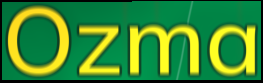
Ozma